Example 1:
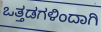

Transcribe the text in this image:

ಒತ್ತಡಗಳಿಂದಾಗಿ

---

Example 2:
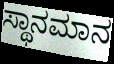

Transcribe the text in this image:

ಸ್ಥಾನಮಾನ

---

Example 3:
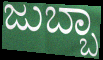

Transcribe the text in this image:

ಜುಬ್ಬಾ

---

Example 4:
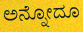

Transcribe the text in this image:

ಅನ್ನೋದೂ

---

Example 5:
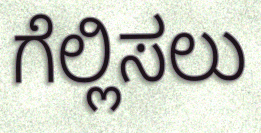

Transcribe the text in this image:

ಗೆಲ್ಲಿಸಲು